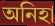
অনিহা